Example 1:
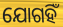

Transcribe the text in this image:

ଯୋଗହିଁ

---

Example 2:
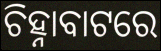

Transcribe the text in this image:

ଚିହ୍ନାବାଟରେ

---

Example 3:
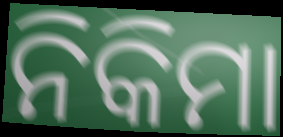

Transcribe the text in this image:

ନିକିମା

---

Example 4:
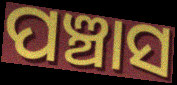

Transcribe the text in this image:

ପଞ୍ଚାସ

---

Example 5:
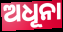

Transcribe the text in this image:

ଅଧୂନା